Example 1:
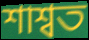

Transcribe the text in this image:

শাশ্বত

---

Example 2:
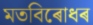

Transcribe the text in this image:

মতবিৰোধৰ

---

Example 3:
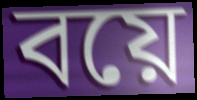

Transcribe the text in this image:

বয়ে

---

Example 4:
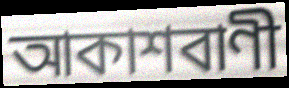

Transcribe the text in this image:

আকাশবাণী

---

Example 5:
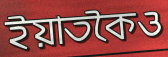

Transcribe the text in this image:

ইয়াতকৈও